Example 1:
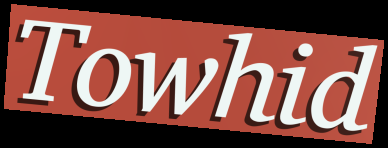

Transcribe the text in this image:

Towhid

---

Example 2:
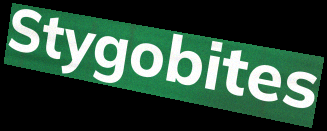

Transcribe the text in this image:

Stygobites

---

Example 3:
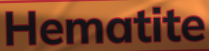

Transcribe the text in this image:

Hematite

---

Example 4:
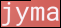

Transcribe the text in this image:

jyma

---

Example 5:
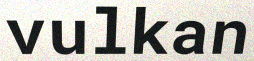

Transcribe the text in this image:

vulkan